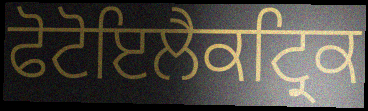
ਫੋਟੋਇਲੈਕਟ੍ਰਿਕ